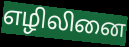
எழிலினை